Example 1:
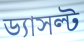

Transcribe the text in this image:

ড্যাসল্ট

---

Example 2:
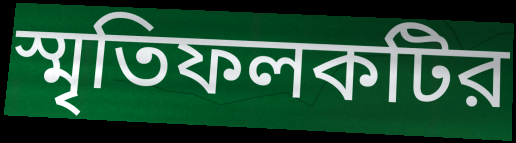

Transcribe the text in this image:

স্মৃতিফলকটির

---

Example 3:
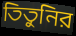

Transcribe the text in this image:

তিতুনির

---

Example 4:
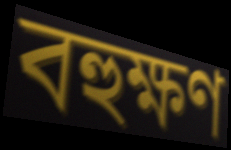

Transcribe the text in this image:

বহুক্ষণ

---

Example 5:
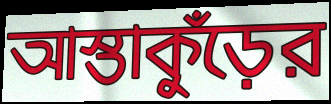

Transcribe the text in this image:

আস্তাকুঁড়ের